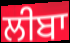
ਲੀਬਾ